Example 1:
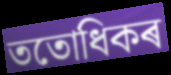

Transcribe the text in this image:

ততোধিকৰ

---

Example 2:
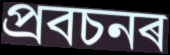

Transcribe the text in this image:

প্ৰবচনৰ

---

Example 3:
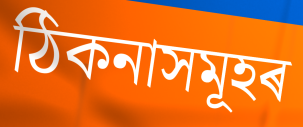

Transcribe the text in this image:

ঠিকনাসমূহৰ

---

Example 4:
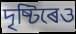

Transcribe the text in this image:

দৃষ্টিৰেও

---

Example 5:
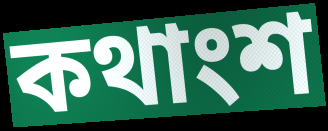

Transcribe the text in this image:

কথাংশ